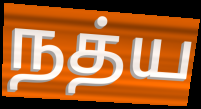
நத்ய